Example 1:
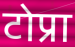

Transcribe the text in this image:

टोप्रा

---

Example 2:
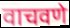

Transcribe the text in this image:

वाचवणे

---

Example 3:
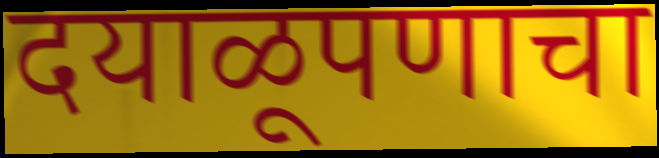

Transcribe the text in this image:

दयाळूपणाचा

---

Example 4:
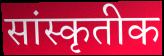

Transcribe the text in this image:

सांस्कृतीक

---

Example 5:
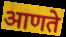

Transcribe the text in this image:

आणते